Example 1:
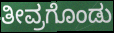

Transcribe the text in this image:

ತೀವ್ರಗೊಂಡು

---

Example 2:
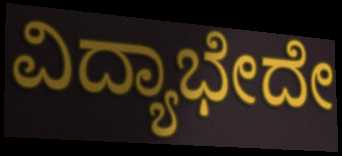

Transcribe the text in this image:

ವಿದ್ಯಾಭೇದೇ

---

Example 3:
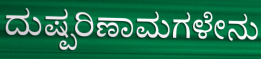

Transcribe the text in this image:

ದುಷ್ಪರಿಣಾಮಗಳೇನು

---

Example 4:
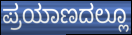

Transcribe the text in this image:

ಪ್ರಯಾಣದಲ್ಲೂ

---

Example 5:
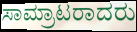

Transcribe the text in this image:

ಸಾಮ್ರಾಟರಾದರು